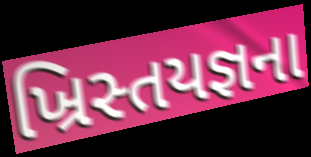
ખ્રિસ્તયજ્ઞના